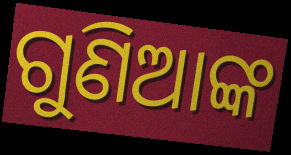
ଗୁଣିଆଙ୍କ